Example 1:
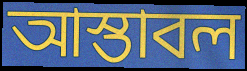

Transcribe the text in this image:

আস্তাবল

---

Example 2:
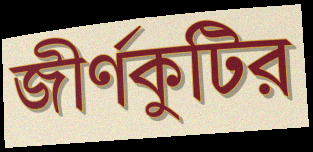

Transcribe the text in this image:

জীর্ণকুটির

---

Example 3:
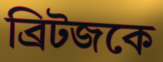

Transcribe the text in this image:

ব্রিটজকে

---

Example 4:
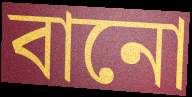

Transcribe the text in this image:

বানো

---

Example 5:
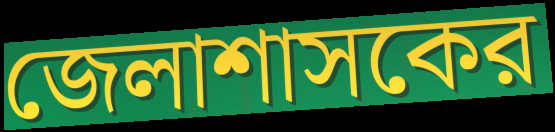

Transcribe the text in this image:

জেলাশাসকের